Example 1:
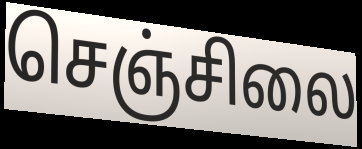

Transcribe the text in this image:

செஞ்சிலை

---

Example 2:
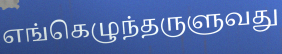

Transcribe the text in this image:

எங்கெழுந்தருளுவது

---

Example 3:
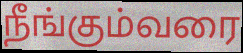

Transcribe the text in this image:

நீங்கும்வரை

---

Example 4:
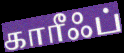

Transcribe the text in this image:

காரீஃப்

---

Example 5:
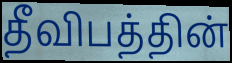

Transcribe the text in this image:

தீவிபத்தின்